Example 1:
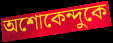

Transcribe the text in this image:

অশোকেন্দুকে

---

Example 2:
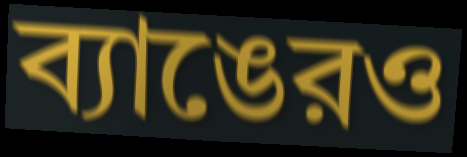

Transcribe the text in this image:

ব্যাঙেরও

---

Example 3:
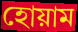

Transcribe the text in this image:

হোয়াম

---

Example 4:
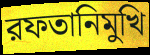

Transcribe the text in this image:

রফতানিমুখি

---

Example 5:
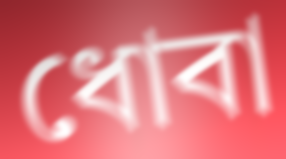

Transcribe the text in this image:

ধোবা